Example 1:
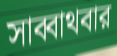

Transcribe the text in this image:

সাব্বাথবার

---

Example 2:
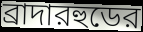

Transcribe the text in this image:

ব্রাদারহুডের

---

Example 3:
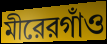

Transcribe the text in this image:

মীরেরগাঁও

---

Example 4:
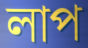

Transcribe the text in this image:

লাপ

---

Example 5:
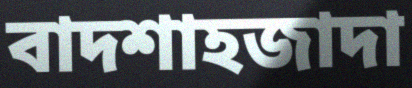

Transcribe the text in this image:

বাদশাহজাদা